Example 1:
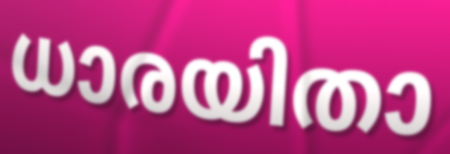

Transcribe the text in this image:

ധാരയിതാ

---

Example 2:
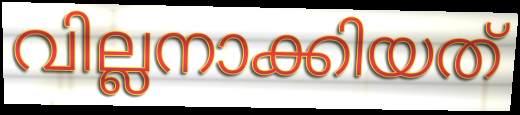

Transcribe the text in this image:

വില്ലനാക്കിയത്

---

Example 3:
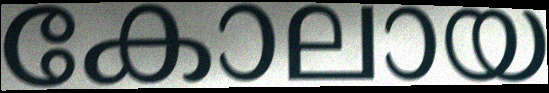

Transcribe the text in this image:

കോലായ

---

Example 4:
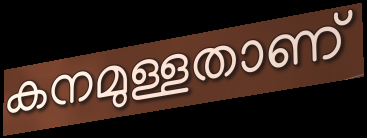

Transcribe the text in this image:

കനമുള്ളതാണ്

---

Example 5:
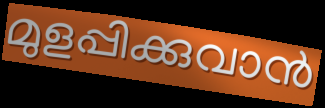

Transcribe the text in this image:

മുളപ്പിക്കുവാൻ